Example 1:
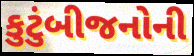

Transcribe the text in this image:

કુટુંબીજનોની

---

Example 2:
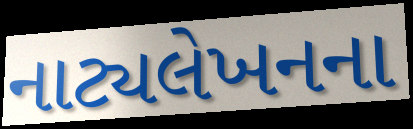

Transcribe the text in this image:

નાટ્યલેખનના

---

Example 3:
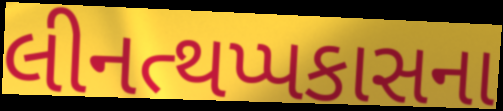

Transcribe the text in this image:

લીનત્થપ્પકાસના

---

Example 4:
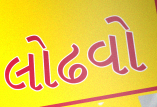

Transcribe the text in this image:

લોઢવો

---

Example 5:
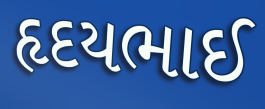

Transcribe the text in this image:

હૃદયભાઈ